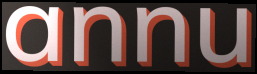
annu